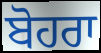
ਬੋਹਰਾ